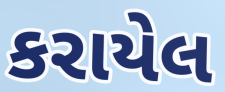
કરાયેલ